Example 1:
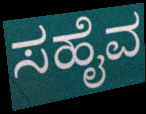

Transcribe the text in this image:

ಸಹೈವ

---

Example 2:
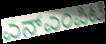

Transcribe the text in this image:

ಎನ್ಎಂಪಿಟಿ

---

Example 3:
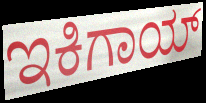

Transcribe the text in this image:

ಇಕಿಗಾಯ್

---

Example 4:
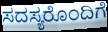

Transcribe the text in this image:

ಸದಸ್ಯರೊಂದಿಗೆ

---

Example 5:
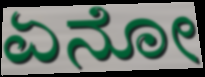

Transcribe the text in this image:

ಏನೋ